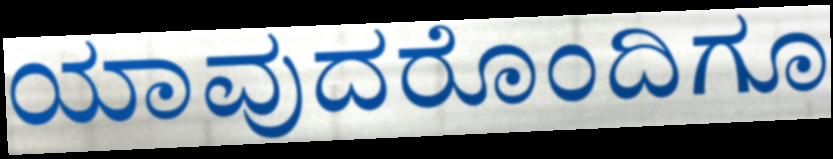
ಯಾವುದರೊಂದಿಗೂ